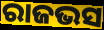
ରାଜଭସ